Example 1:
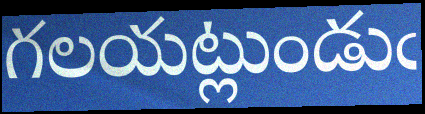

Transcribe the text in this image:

గలయట్లుండుఁ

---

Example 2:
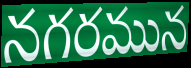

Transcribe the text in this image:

నగరమున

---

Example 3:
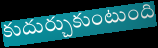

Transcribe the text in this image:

కుదుర్చుకుంటుంది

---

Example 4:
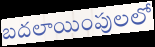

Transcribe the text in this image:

బదలాయింపులలో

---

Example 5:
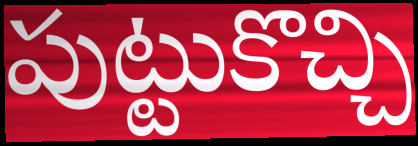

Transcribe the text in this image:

పుట్టుకొచ్చి